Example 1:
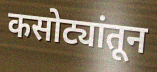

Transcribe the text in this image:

कसोट्यांतून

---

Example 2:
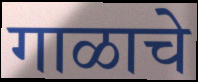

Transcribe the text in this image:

गाळाचे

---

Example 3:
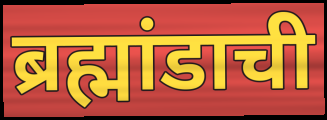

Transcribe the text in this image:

ब्रह्मांडाची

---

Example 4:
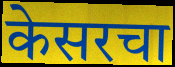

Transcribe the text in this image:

केसरचा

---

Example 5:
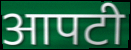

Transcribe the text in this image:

आपटी